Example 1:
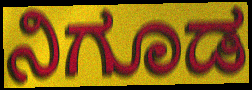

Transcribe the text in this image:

ನಿಗೂಡ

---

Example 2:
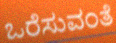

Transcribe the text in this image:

ಒರೆಸುವಂತೆ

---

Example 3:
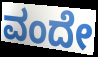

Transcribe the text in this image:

ವಂದೇ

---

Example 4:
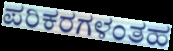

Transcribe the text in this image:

ಪರಿಕರಗಳಂತಹ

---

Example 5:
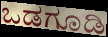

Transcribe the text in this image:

ಒಡಗೂಡಿ